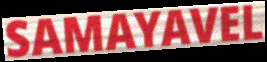
SAMAYAVEL